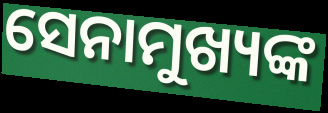
ସେନାମୁଖ୍ୟଙ୍କ